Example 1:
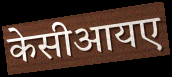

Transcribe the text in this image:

केसीआयए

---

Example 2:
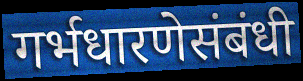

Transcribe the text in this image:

गर्भधारणेसंबंधी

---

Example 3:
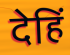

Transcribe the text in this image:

देहिं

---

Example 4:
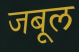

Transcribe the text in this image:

जबूल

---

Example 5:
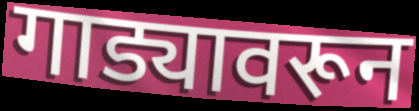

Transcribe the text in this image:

गाड्यावरून